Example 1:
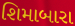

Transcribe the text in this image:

શિમાબારા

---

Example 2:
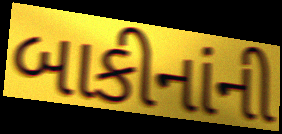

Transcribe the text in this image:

બાકીનાંની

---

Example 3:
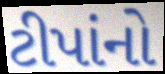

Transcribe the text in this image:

ટીપાંનો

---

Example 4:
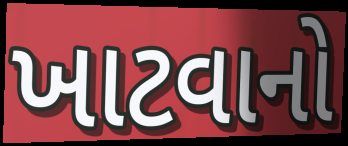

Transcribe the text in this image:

ખાટવાનો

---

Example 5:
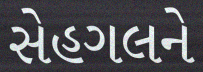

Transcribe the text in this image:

સેહગલને